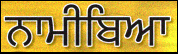
ਨਾਮੀਬਿਆ